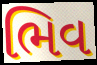
ભિવ